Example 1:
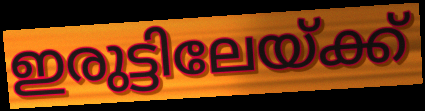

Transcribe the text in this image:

ഇരുട്ടിലേയ്ക്ക്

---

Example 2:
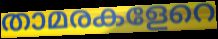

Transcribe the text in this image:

താമരകളേറെ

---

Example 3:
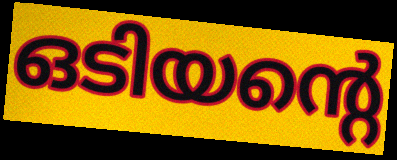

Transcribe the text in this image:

ഒടിയന്റെ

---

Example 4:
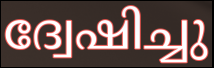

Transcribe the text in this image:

ദ്വേഷിച്ചു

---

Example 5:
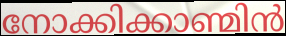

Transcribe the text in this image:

നോക്കിക്കാണ്മിൻ